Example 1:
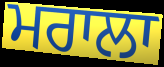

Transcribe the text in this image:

ਮਰਾਲਾ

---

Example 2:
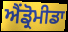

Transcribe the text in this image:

ਐਂਡ੍ਰੋਮੀਡਾ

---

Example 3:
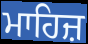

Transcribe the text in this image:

ਮਾਹਿਜ਼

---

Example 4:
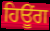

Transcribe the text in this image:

ਹਿਊੰਗ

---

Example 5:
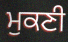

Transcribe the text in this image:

ਮੁਕਣੀ